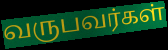
வருபவர்கள்